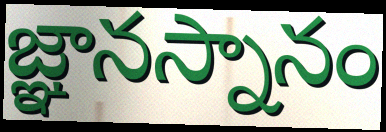
జ్ఞానస్నానం